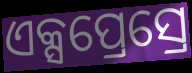
ଏକ୍ସପ୍ରେସ୍ରେ